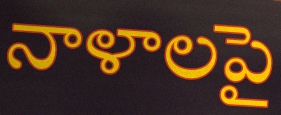
నాళాలపై